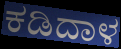
ಕಡಿದಾಳ